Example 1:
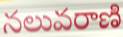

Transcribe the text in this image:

నలువరాణి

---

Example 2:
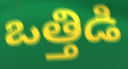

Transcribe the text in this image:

ఒత్తిడి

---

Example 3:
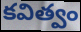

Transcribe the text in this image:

కవిత్వం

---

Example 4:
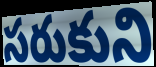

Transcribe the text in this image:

సరుకుని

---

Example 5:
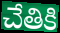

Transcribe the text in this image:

చేతికి